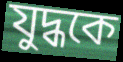
যুদ্ধকে